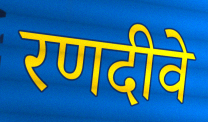
रणदीवे